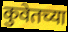
कुवेतच्या